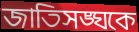
জাতিসঙ্ঘকে